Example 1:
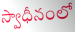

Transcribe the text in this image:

స్వాధీనంలో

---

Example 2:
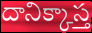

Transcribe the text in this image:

దానిక్కాస్త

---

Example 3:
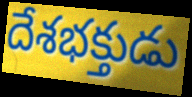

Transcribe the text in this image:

దేశభక్తుడు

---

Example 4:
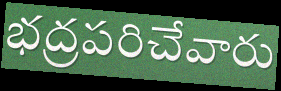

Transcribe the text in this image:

భద్రపరిచేవారు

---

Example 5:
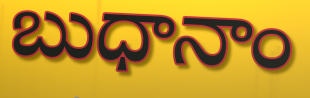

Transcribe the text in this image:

బుధానాం